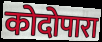
कोदोपारा